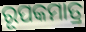
ରୂପକମାତ୍ର